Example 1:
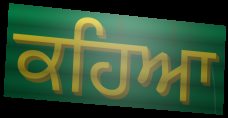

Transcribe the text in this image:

ਕਹਿਆ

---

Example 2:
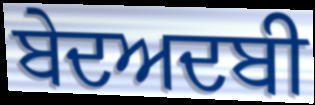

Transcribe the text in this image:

ਬੇਦਅਦਬੀ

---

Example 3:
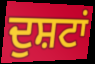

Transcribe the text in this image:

ਦੁਸ਼ਟਾਂ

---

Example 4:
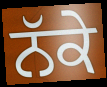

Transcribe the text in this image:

ਨੱਕੇ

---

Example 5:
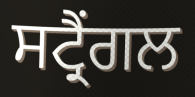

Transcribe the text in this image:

ਸਟ੍ਰੈਂਗਲ